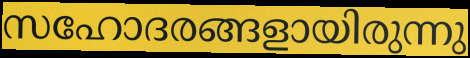
സഹോദരങ്ങളായിരുന്നു